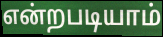
என்றபடியாம்